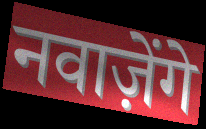
नवाज़ेंगे